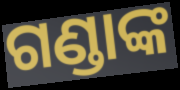
ଗଣ୍ଡାଙ୍କ